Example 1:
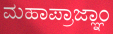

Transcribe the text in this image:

ಮಹಾಪ್ರಾಜ್ಞಾಂ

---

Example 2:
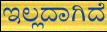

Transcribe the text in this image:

ಇಲ್ಲದಾಗಿದೆ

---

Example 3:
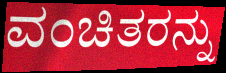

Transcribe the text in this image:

ವಂಚಿತರನ್ನು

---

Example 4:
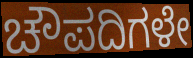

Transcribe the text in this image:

ಚೌಪದಿಗಳೇ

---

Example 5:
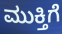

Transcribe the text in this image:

ಮುಕ್ತಿಗೆ